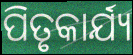
ପିତୃକାର୍ଯ୍ୟ